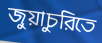
জুয়াচুরিতে